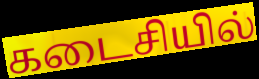
கடைசியில்